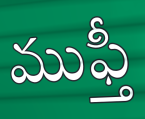
ముఫ్తీ